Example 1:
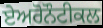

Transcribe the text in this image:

ਏਅਰੋਨੌਟੀਕਲ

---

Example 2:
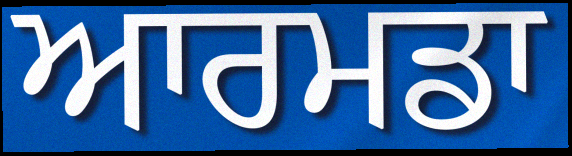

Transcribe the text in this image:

ਆਰਮਡਾ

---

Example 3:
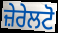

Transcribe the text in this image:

ਜ਼ੇਰੇਲਟੋ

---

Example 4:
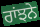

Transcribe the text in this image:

ਰਾਂਝਨੇ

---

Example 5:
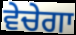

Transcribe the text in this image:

ਵੇਚੇਗਾ